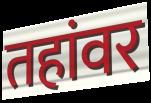
तहांवर